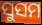
ସୁସମ